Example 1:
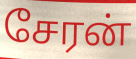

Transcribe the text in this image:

சேரன்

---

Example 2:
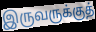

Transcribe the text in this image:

இருவருக்குத்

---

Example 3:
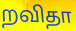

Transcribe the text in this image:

றவிதா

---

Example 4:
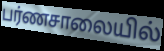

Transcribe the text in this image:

பர்ணசாலையில்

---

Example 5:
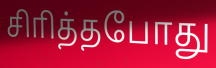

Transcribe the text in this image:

சிரித்தபோது